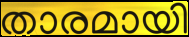
താരമായി